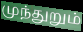
முந்துறும்